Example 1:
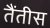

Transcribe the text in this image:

तैंतीस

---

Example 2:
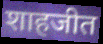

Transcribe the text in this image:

शाहजीत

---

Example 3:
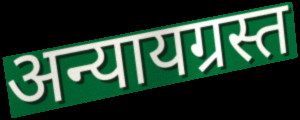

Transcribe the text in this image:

अन्यायग्रस्त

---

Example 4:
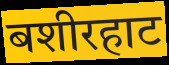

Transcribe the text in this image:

बशीरहाट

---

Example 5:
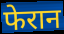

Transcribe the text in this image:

फेरान